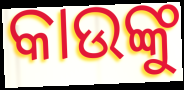
କାଉଙ୍କୁ